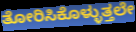
ತೋರಿಸಿಕೊಳ್ಳುತ್ತಲೇ